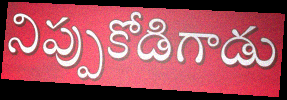
నిప్పుకోడిగాడు